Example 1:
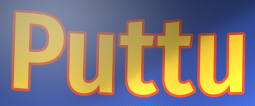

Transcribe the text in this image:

Puttu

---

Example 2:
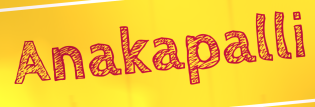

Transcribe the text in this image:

Anakapalli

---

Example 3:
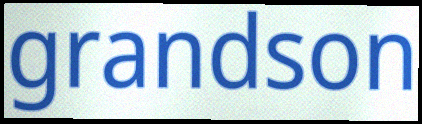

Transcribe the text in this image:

grandson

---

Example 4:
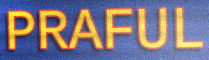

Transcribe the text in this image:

PRAFUL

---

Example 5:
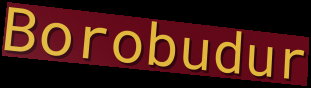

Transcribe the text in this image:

Borobudur